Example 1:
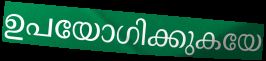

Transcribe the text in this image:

ഉപയോഗിക്കുകയേ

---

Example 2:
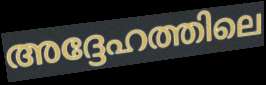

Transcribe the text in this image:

അദ്ദേഹത്തിലെ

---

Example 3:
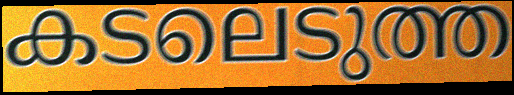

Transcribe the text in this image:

കടലെടുത്ത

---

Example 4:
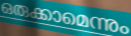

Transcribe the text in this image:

ഒരുക്കാമെന്നും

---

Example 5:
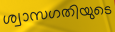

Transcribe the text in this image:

ശ്വാസഗതിയുടെ